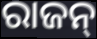
ରାଜନ୍